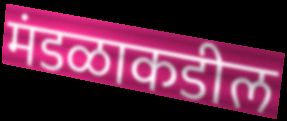
मंडळाकडील